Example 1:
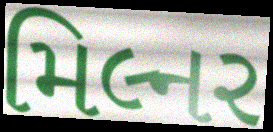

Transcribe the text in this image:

મિલ્નર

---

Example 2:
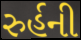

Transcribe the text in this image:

રુર્હની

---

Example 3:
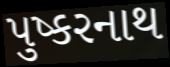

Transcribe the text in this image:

પુષ્કરનાથ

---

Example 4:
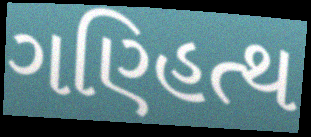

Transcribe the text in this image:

ગણ્હિત્થ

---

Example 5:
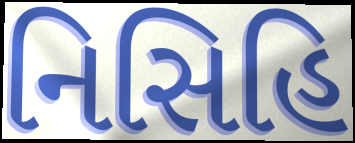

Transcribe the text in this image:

નિસિહિ